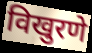
विखुरणे